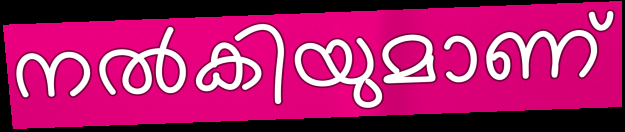
നൽകിയുമാണ്